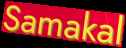
Samakal